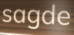
sagde